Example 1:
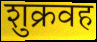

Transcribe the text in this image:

शुक्रवह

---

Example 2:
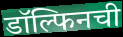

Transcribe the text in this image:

डॉल्फिनची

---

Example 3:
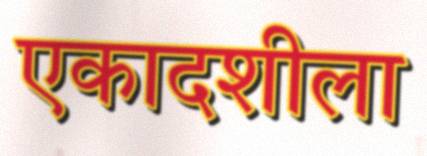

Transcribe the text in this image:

एकादशीला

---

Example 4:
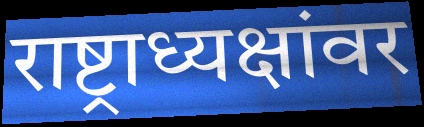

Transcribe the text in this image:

राष्ट्राध्यक्षांवर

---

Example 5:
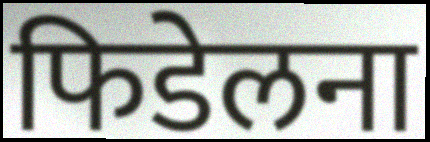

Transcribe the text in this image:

फिडेलना